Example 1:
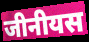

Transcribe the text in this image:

जीनीयस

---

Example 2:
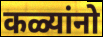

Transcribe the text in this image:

कळ्यांनो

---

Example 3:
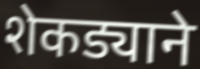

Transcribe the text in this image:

शेकड्याने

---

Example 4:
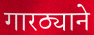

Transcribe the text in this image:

गारठ्याने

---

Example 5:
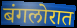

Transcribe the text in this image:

बंगलोरात